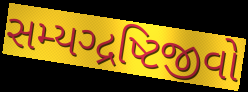
સમ્યગ્દ્રષ્ટિજીવો